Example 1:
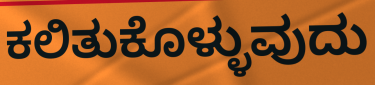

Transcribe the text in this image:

ಕಲಿತುಕೊಳ್ಳುವುದು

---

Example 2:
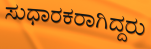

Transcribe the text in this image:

ಸುಧಾರಕರಾಗಿದ್ದರು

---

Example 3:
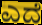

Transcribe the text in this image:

ಎದೆ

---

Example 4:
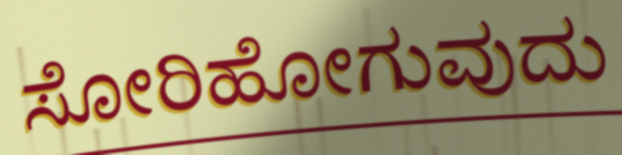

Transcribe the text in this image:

ಸೋರಿಹೋಗುವುದು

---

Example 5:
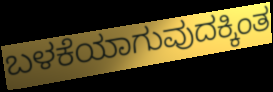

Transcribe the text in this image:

ಬಳಕೆಯಾಗುವುದಕ್ಕಿಂತ